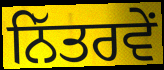
ਨਿੱਤਰਵੇਂ